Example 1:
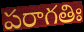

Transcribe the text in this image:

పరాగతిః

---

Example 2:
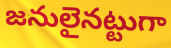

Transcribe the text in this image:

జనులైనట్టుగా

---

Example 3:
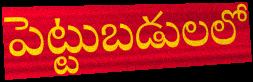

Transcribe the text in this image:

పెట్టుబడులలో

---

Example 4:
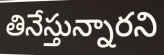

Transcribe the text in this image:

తినేస్తున్నారని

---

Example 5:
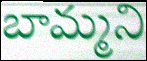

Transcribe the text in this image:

బామ్మని